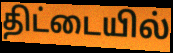
திட்டையில்